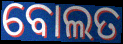
ବୋଲତ